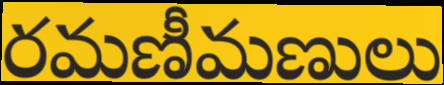
రమణీమణులు